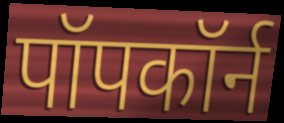
पॉपकॉर्न